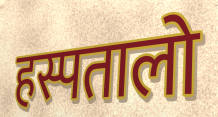
हस्पतालो